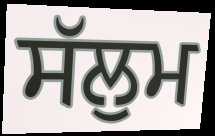
ਸੱਲੁਮ